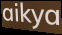
aikya